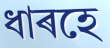
ধাৰহে